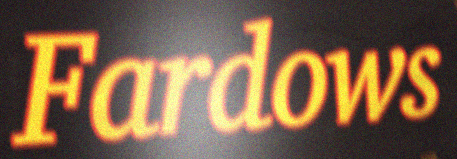
Fardows